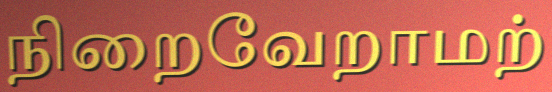
நிறைவேறாமற்